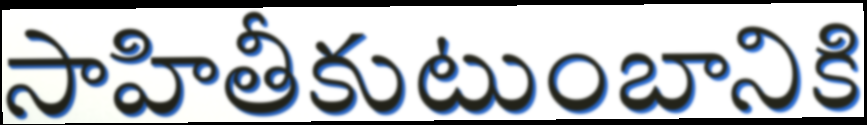
సాహితీకుటుంబానికి